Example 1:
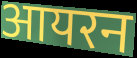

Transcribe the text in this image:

आयरन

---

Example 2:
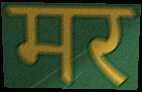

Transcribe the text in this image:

मर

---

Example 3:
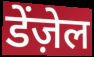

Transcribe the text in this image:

डेंज़ेल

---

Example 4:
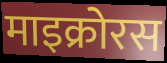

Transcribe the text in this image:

माइक्रोरस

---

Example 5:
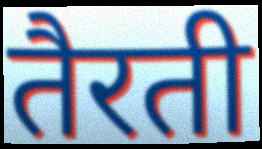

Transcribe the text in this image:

तैरती